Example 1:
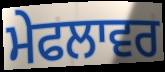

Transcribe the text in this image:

ਮੇਫਲਾਵਰ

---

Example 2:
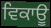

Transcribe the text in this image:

ਵਿਕਾਊ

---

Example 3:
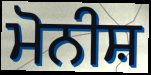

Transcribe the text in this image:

ਮੋਨੀਸ਼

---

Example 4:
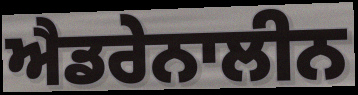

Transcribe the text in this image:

ਐਡਰੇਨਾਲੀਨ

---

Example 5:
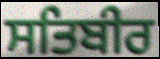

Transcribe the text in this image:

ਸਤਿਬੀਰ